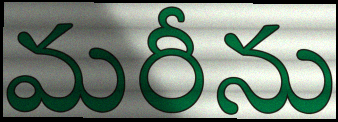
మరీను